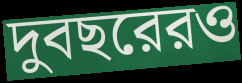
দুবছরেরও